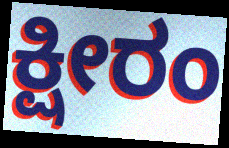
ಕ್ಷೀರಂ